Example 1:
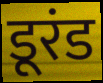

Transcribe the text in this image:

डूरंड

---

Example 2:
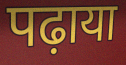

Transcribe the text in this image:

पढ़ाया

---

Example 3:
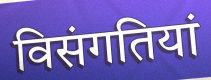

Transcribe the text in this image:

विसंगतियां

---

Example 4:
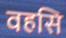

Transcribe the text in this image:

वहसि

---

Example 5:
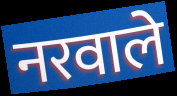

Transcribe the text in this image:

नरवाले